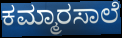
ಕಮ್ಮಾರಸಾಲೆ